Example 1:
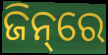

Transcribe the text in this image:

ଜିନ୍‌ରେ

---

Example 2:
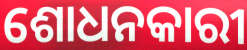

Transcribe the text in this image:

ଶୋଧନକାରୀ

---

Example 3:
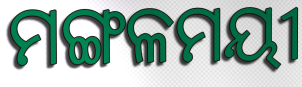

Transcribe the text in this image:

ମଙ୍ଗଳମୟୀ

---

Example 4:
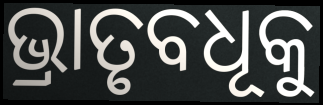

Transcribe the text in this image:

ଭ୍ରାତୃବଧୂକୁ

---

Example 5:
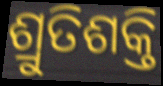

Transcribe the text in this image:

ଶ୍ରୁତିଶକ୍ତି